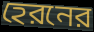
হেরনের